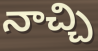
నాచ్చి